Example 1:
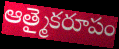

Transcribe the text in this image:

ఆత్మైకరూపం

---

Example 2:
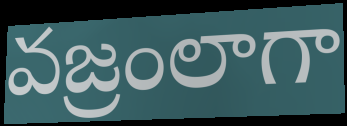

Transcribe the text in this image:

వజ్రంలాగా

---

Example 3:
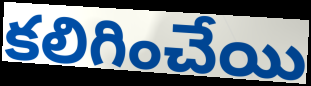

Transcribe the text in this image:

కలిగించేయి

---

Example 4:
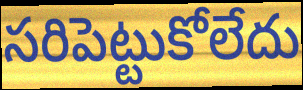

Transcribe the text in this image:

సరిపెట్టుకోలేదు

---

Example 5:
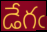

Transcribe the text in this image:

డేగఁ